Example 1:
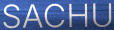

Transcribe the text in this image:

SACHU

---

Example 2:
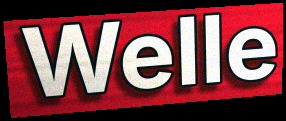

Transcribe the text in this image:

Welle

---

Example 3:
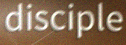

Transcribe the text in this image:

disciple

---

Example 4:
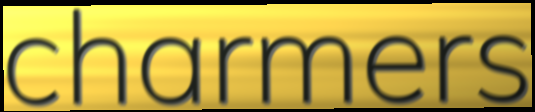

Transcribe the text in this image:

charmers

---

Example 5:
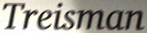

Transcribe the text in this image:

Treisman